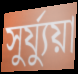
সুর্য্যুয়া